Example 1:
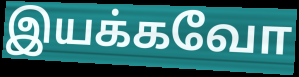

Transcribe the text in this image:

இயக்கவோ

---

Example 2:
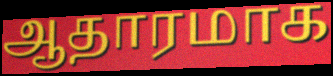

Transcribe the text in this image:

ஆதாரமாக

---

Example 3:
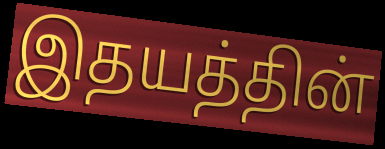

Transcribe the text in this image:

இதயத்தின்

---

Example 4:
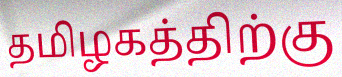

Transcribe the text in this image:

தமிழகத்திற்கு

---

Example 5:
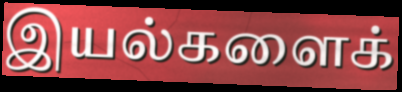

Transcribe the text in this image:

இயல்களைக்